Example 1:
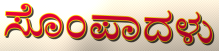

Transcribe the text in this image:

ಸೊಂಪಾದಳು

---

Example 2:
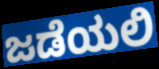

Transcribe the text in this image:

ಜಡೆಯಲಿ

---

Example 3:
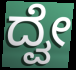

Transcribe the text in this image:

ದ್ವೇ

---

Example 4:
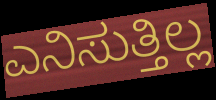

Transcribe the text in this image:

ಎನಿಸುತ್ತಿಲ್ಲ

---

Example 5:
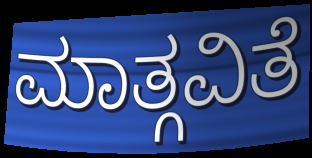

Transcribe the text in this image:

ಮಾತ್ಗವಿತೆ